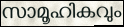
സാമൂഹികവും